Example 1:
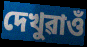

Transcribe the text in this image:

দেখুৱাওঁ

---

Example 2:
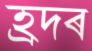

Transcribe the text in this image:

হ্ৰদৰ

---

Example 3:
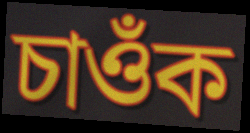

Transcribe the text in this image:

চাওঁক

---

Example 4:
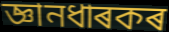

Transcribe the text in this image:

জ্ঞানধাৰকৰ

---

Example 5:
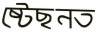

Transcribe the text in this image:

ষ্টেছনত